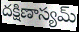
దక్షిణాస్యమ్